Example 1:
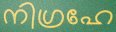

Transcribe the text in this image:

നിഗ്രഹേ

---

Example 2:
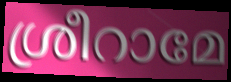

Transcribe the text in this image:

ശ്രീറാമേ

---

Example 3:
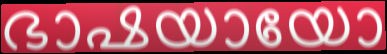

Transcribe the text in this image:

ഭാഷയായോ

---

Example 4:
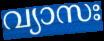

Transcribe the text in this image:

വ്യാസഃ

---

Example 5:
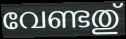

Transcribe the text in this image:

വേണ്ടതു്